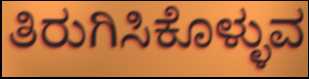
ತಿರುಗಿಸಿಕೊಳ್ಳುವ